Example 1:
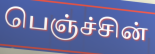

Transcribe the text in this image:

பெஞ்ச்சின்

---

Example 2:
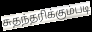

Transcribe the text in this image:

சுதந்தரிக்கும்படி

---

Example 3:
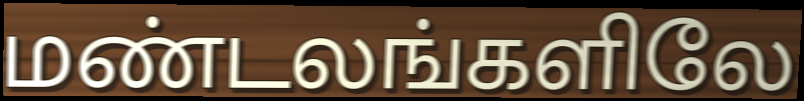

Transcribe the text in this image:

மண்டலங்களிலே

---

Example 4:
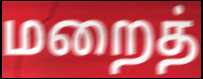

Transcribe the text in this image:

மறைத்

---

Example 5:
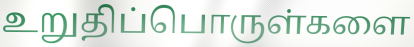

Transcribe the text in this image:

உறுதிப்பொருள்களை